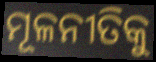
ମୂଳନୀତିକୁ